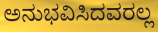
ಅನುಭವಿಸಿದವರಲ್ಲ